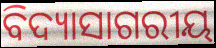
ବିଦ୍ୟାସାଗରୀୟ